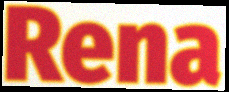
Rena